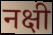
नक्षी